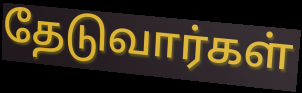
தேடுவார்கள்